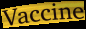
Vaccine